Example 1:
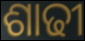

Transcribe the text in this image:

ଶାଢୀ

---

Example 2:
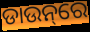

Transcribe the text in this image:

ଡାଉନ୍‌ରେ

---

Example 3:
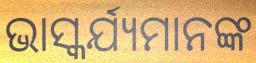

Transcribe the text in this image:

ଭାସ୍କର୍ଯ୍ୟମାନଙ୍କ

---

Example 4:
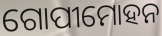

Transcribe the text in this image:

ଗୋପୀମୋହନ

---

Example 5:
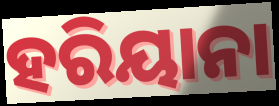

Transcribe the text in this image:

ହରିୟାନା